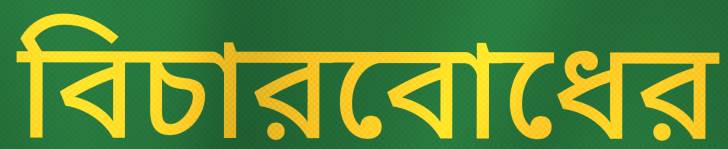
বিচারবোধের